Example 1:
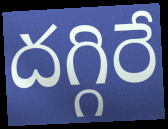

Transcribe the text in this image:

దగ్గిరే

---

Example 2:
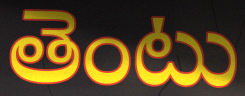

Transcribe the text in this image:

తెంటు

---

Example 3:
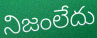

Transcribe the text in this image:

నిజంలేదు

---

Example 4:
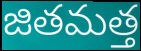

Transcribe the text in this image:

జితమత్త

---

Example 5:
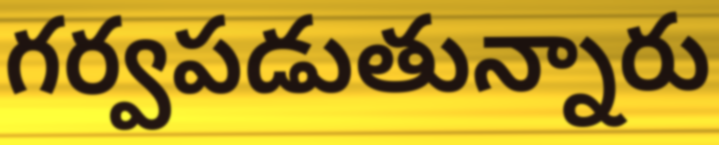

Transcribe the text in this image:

గర్వపడుతున్నారు